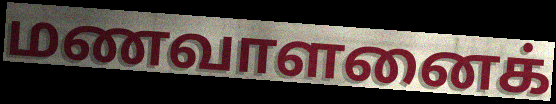
மணவாளனைக்